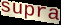
supra